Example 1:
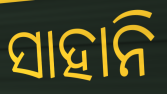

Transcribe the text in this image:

ସାହାନି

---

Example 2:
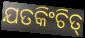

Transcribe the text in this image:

ଯତକିଂଚିତ୍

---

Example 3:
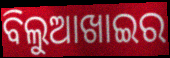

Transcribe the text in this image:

ବିଲୁଆଖାଇର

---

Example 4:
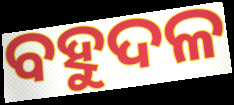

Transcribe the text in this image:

ବହୁଦଳ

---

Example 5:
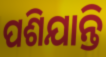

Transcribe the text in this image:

ପଶିଯାନ୍ତି